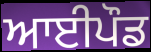
ਆਈਪੌਡ